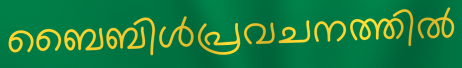
ബൈബിൾപ്രവചനത്തിൽ